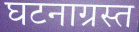
घटनाग्रस्त